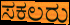
ಸಕಲರು